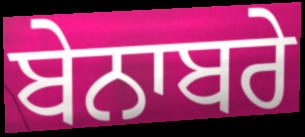
ਬੇਨਾਬਰੇ